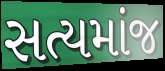
સત્યમાંજ